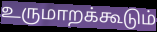
உருமாறக்கூடும்